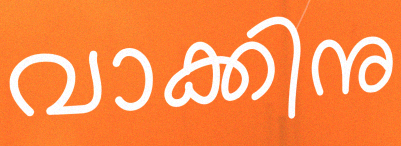
വാക്കിനു